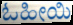
ಓಹೀಯಿ